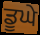
ਡੂਘੇ